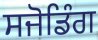
ਸਜੋਡਿੰਗ